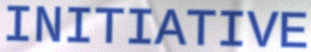
INITIATIVE